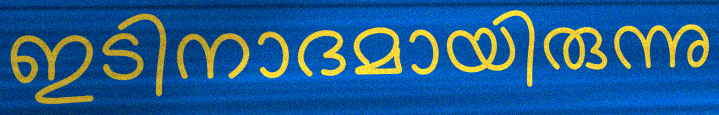
ഇടിനാദമായിരുന്നു